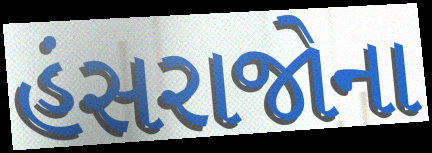
હંસરાજોના